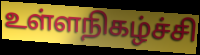
உள்ளநிகழ்ச்சி